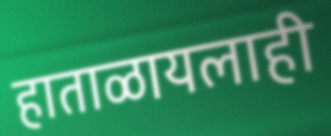
हाताळायलाही